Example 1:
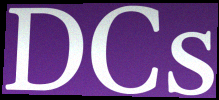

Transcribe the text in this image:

DCs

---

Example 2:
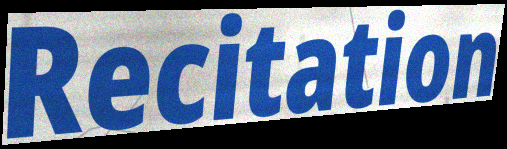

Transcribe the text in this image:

Recitation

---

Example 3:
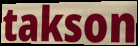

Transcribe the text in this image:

takson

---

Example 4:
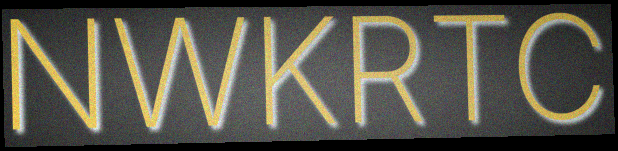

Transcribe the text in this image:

NWKRTC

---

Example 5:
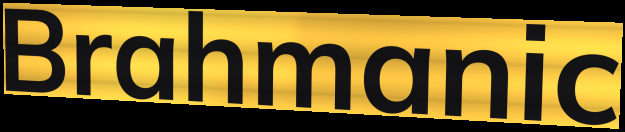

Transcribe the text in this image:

Brahmanic